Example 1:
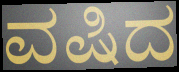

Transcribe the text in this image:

ವಷಿದ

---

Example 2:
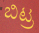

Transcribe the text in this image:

ಬಿಟ್ರ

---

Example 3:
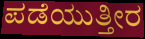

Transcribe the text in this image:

ಪಡೆಯುತ್ತೀರ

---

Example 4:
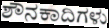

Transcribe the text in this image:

ಶೌನಕಾದಿಗಳು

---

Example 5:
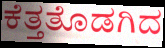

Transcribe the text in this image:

ಕೆತ್ತತೊಡಗಿದ